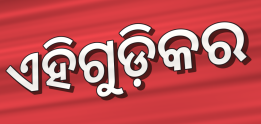
ଏହିଗୁଡ଼ିକର